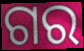
ଗର